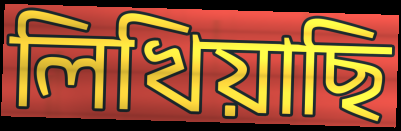
লিখিয়াছি